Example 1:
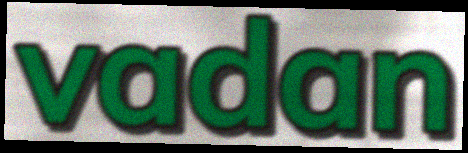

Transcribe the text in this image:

vadan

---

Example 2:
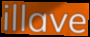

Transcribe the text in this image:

illave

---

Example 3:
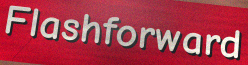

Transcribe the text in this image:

Flashforward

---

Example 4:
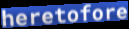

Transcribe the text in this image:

heretofore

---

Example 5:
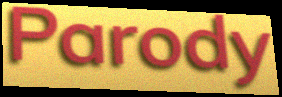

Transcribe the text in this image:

Parody